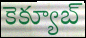
కెక్యూబ్